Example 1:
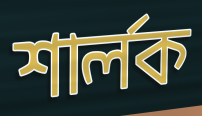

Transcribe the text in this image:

শার্লক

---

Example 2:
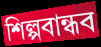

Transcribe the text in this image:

শিল্পবান্ধব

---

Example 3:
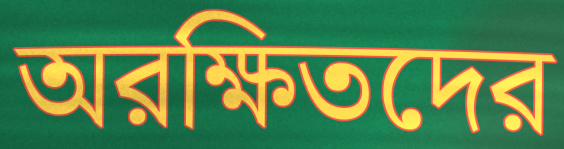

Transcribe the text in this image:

অরক্ষিতদের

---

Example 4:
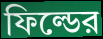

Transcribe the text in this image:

ফিল্ডের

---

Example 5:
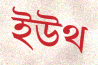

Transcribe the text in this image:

ইউথ